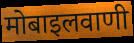
मोबाइलवाणी